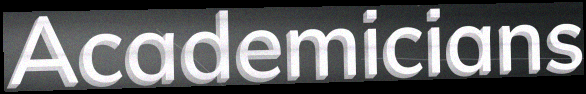
Academicians